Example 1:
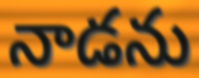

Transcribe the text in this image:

నాడను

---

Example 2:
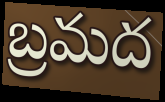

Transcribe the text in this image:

బ్రమద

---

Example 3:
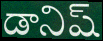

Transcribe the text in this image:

డానిష్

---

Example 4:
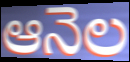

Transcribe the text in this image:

ఆనెల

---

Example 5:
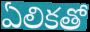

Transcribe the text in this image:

ఏలికతో